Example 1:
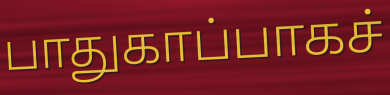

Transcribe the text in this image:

பாதுகாப்பாகச்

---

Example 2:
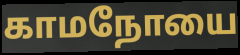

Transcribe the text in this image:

காமநோயை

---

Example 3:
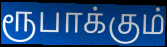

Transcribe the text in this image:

ரூபாக்கும்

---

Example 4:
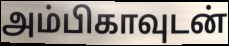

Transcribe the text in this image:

அம்பிகாவுடன்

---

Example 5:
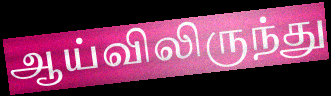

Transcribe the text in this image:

ஆய்விலிருந்து